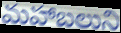
మహాబలుని